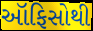
ઑફિસોથી